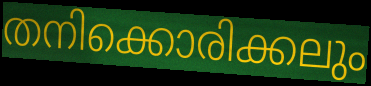
തനിക്കൊരിക്കലും